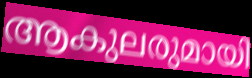
ആകുലരുമായി